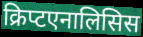
क्रिप्टएनालिसिस